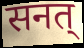
सनत्